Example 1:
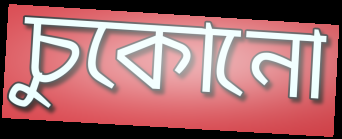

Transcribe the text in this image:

চুকোনো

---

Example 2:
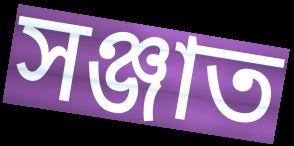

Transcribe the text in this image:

সঞ্জাত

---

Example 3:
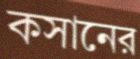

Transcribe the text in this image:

কসানের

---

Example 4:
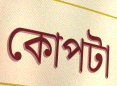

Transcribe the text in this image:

কোপটা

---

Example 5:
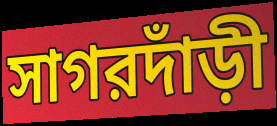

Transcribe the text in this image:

সাগরদাঁড়ী